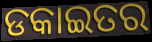
ଡକାଇତର